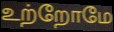
உற்றோமே